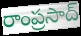
రాంప్రసాద్